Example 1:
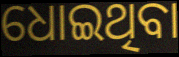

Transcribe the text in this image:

ଧୋଇଥିବା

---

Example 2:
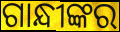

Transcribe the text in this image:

ଗାନ୍ଧୀଙ୍କର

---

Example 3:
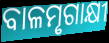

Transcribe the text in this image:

ବାଳମୃଗାକ୍ଷୀ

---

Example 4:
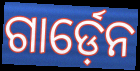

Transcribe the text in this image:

ଗାର୍ଡ଼େନ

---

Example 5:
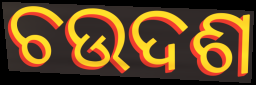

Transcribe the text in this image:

ଚଉଦଶ